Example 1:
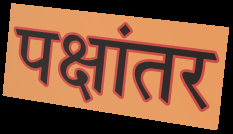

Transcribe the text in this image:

पक्षांतर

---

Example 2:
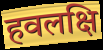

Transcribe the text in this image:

हवलक्षि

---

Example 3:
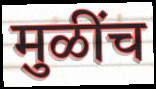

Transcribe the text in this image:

मुळींच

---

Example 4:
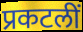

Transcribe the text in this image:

प्रकटलीं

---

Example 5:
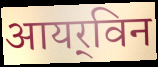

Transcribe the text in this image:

आयर्विन